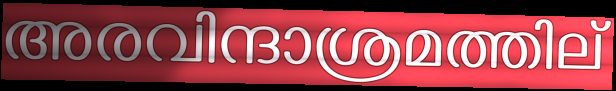
അരവിന്ദാശ്രമത്തില്